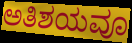
ಅತಿಶಯವೂ